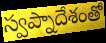
స్వప్నాదేశంతో